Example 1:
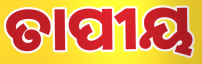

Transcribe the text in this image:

ତାପୀୟ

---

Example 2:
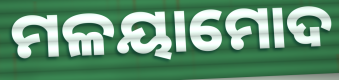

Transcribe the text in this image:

ମଳୟାମୋଦ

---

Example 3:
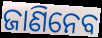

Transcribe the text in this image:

ଜାଣିନେବ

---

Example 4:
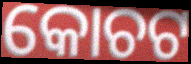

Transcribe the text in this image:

କୋଚଟ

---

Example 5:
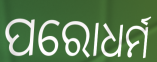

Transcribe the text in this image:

ପରୋଧର୍ମ